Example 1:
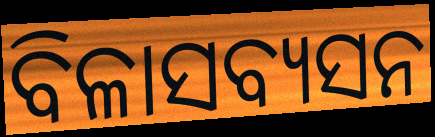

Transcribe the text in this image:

ବିଳାସବ୍ୟସନ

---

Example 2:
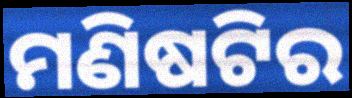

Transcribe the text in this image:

ମଣିଷଟିର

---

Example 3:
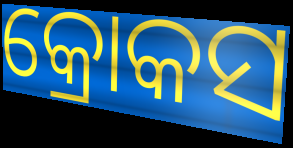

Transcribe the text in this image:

କ୍ରୋକସ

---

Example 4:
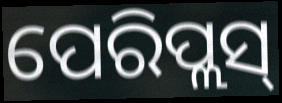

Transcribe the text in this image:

ପେରିପ୍ଲସ୍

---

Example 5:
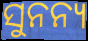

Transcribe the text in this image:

ସୁନନ୍ୟ